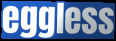
eggless